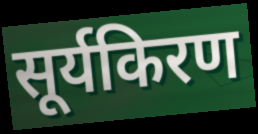
सूर्यकिरण